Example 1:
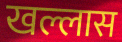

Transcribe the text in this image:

खल्लास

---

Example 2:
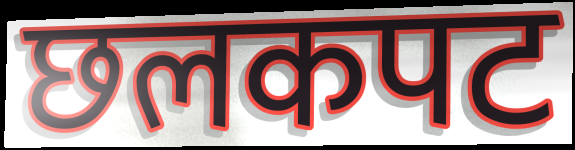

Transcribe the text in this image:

छलकपट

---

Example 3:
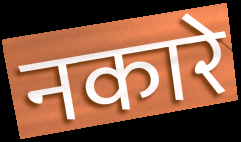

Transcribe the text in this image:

नकारे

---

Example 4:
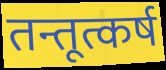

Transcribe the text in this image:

तन्तूत्कर्ष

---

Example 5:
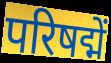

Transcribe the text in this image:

परिषद्में